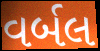
વર્બલ